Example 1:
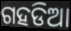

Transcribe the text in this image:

ଗହଡିଆ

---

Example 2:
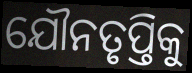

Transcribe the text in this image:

ଯୌନତୃପ୍ତିକୁ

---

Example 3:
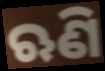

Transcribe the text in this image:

ଋଣି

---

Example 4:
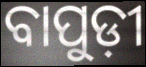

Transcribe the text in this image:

ବାପୁଡ଼ୀ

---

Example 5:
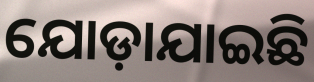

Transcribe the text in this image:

ଯୋଡ଼ାଯାଇଛି